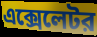
এক্সেলেটর